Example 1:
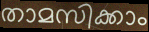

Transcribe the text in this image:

താമസിക്കാം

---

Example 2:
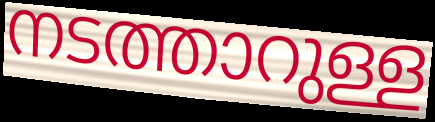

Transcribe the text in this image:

നടത്താറുള്ള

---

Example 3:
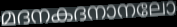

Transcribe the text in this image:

മദനകദനാനലോ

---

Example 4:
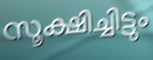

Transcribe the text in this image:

സൂക്ഷിച്ചിട്ടും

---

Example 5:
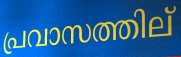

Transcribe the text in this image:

പ്രവാസത്തില്